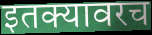
इतक्यावरच